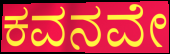
ಕವನವೇ